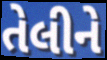
તેલીને